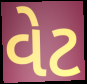
વેટ